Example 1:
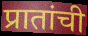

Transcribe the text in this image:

प्रातांची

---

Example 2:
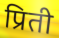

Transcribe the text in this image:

प्रिती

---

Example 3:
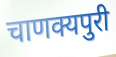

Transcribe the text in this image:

चाणक्यपुरी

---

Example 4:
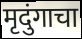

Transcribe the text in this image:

मृदुंगाचा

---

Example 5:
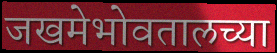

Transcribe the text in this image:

जखमेभोवतालच्या